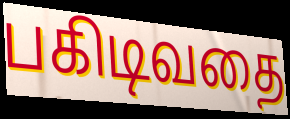
பகிடிவதை